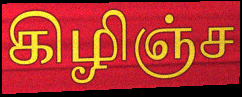
கிழிஞ்ச